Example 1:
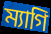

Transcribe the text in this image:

ম্যাগি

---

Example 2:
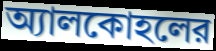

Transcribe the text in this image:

অ্যালকোহলের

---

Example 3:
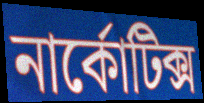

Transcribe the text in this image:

নার্কোটিক্স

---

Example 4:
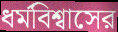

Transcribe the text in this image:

ধর্মবিশ্বাসের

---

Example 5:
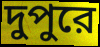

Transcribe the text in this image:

দুপুরে